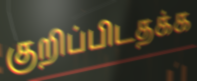
குறிப்பிடதக்க